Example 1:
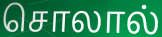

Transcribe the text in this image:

சொலால்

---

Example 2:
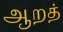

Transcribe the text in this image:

ஆறத்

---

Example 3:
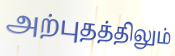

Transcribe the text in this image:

அற்புதத்திலும்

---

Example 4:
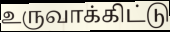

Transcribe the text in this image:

உருவாக்கிட்டு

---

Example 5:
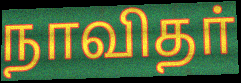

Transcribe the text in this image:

நாவிதர்